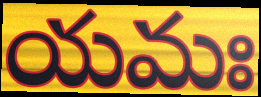
యమః